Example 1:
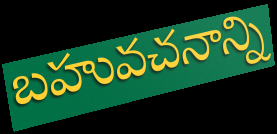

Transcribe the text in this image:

బహువచనాన్ని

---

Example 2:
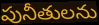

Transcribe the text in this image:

పునీతులను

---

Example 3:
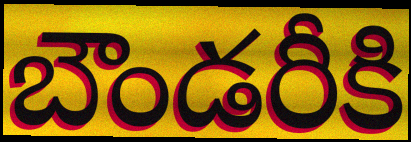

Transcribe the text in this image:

బౌండరీకి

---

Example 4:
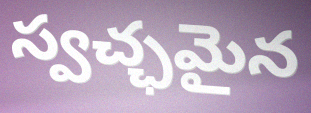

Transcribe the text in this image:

స్వచ్ఛమైన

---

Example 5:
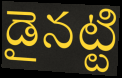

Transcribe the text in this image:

డైనట్టి